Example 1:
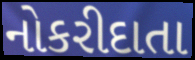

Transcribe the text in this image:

નોકરીદાતા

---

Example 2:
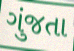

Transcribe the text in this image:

ગુંજતા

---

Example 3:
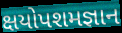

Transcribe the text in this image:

ક્ષયોપશમજ્ઞાન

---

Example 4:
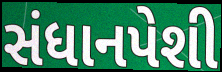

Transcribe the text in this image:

સંધાનપેશી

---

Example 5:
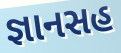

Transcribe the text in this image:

જ્ઞાનસહ